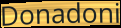
Donadoni